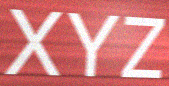
XYZ